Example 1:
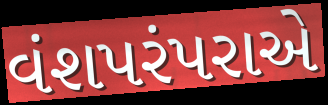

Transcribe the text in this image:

વંશપરંપરાએ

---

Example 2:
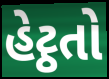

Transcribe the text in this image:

હેટ્ઠતો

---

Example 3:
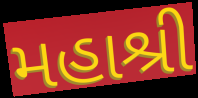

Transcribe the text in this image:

મહાશ્રી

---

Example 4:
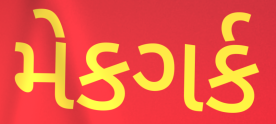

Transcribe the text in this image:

મેકગર્ક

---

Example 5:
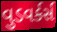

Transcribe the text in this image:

વુડવર્કર્સ